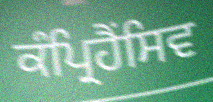
ਕੰਪ੍ਰਿਹੈਂਸਿਵ